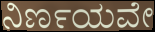
ನಿರ್ಣಯವೇ